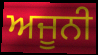
ਅਜੂਨੀ